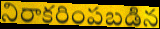
నిరాకరింపబడిన